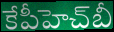
కేపీహెచ్‌బీ